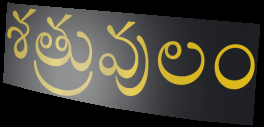
శత్రువులం